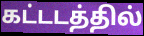
கட்டடத்தில்